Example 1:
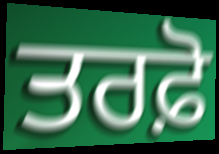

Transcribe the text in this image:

ਤਰਫ਼ੋ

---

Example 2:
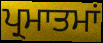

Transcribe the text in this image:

ਪ੍ਰਮਾਤਮਾਂ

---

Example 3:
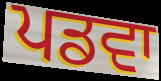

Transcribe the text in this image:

ਪਡਵਾ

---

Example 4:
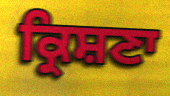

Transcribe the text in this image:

ਕ੍ਰਿਸ਼ਣਾ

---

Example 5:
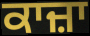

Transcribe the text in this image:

ਕਾਜ਼ਾ